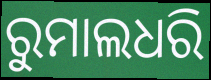
ରୁମାଲଧରି